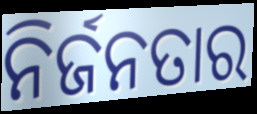
ନିର୍ଜନତାର